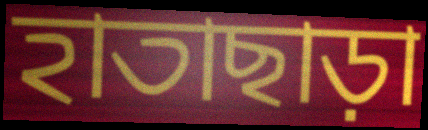
হাতাছাড়া